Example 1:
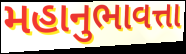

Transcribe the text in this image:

મહાનુભાવત્તા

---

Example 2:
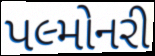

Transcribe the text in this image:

પલ્મોનરી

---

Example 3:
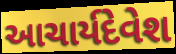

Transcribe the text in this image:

આચાર્યદેવેશ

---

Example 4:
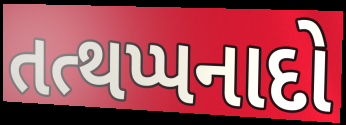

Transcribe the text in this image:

તત્થપ્પનાદો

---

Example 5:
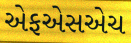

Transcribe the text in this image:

એફએસએચ